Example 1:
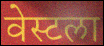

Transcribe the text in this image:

वेस्टला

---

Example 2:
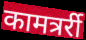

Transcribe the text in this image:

कामत्रर्री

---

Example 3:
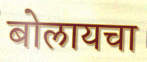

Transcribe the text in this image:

बोलायचा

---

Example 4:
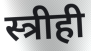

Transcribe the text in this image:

स्त्रीही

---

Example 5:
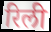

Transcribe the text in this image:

रिली